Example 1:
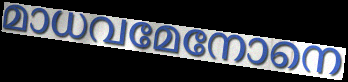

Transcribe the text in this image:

മാധവമേനോനെ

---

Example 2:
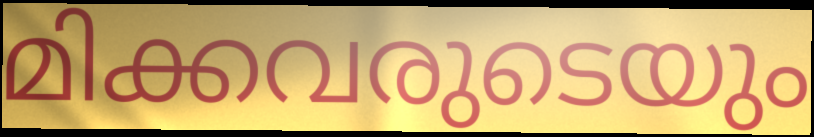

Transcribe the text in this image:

മിക്കവരുടെയും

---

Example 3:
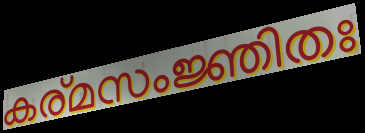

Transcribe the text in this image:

കര്മസംജ്ഞിതഃ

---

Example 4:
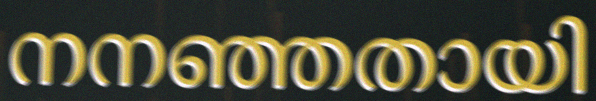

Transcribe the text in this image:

നനഞ്ഞതായി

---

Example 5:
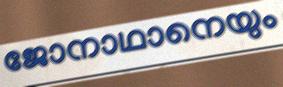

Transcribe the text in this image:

ജോനാഥാനെയും